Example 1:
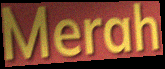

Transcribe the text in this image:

Merah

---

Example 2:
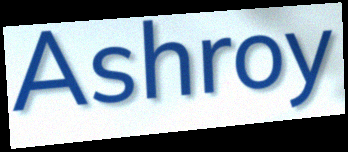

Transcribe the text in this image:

Ashroy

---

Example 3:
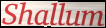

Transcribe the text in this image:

Shallum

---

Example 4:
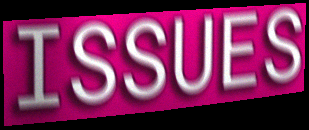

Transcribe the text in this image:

ISSUES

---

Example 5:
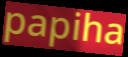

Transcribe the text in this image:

papiha